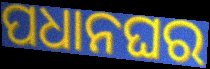
ପଧାନଘର